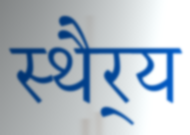
स्थैर्य